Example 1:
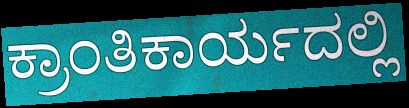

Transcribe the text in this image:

ಕ್ರಾಂತಿಕಾರ್ಯದಲ್ಲಿ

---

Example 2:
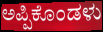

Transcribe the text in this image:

ಅಪ್ಪಿಕೊಂಡಳು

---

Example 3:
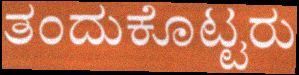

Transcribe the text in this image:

ತಂದುಕೊಟ್ಟರು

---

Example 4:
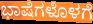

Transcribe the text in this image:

ಭಾಷೆಗಳೊಳಗೆ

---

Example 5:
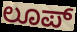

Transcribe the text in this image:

ಲೂಪ್